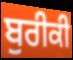
ਬੁਰੀਕੀ